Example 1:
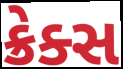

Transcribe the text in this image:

ક્રેક્સ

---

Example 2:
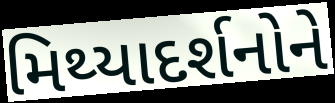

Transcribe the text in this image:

મિથ્યાદર્શનોને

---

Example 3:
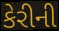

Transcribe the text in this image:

કેરીની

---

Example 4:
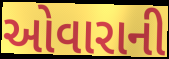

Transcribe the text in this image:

ઓવારાની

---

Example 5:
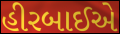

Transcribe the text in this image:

હીરબાઈએ